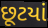
છૂટયાં